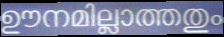
ഊനമില്ലാത്തതും